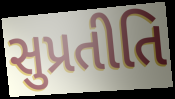
સુપ્રતીતિ